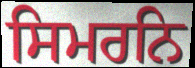
ਸਿਮਰਨਿ